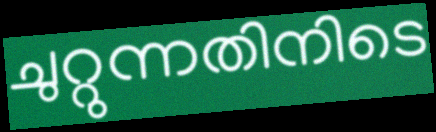
ചുറ്റുന്നതിനിടെ